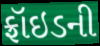
ફ્રૉઇડની